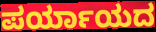
ಪರ್ಯಾಯದ